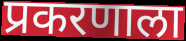
प्रकरणाला